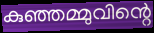
കുഞ്ഞമ്മുവിന്റെ